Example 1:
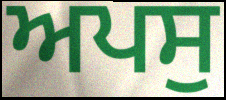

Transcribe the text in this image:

ਅਪਸੁ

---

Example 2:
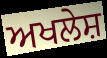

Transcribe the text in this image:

ਅਖਲੇਸ਼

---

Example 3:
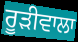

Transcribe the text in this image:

ਰੂਡ਼ੀਵਾਲਾ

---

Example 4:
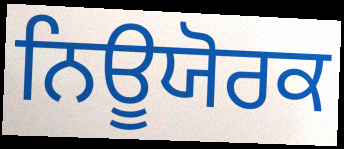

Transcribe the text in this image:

ਨਿਊਯੋਰਕ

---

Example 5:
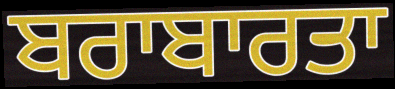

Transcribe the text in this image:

ਬਰਾਬਾਰਤਾ